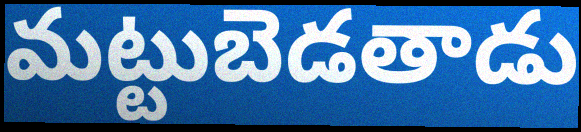
మట్టుబెడతాడు